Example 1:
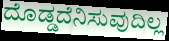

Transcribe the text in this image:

ದೊಡ್ಡದೆನಿಸುವುದಿಲ್ಲ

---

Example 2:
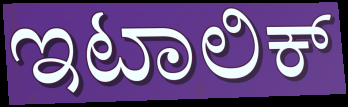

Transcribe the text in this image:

ಇಟಾಲಿಕ್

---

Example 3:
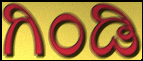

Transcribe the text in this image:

ಗಿಂಡಿ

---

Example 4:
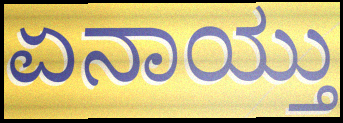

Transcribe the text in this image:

ಏನಾಯ್ತು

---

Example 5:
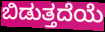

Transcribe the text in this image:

ಬಿಡುತ್ತದೆಯೆ